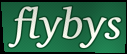
flybys